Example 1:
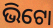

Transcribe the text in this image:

ଭିଟୋ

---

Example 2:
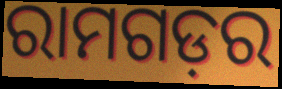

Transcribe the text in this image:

ରାମଗଡ଼ର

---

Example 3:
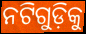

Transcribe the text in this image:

ନଟିଗୁଡ଼ିକୁ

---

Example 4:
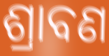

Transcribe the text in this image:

ଶ୍ରାବଣ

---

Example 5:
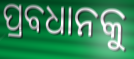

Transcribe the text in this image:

ପ୍ରବଧାନକୁ